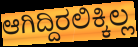
ಆಗಿದ್ದಿರಲಿಕ್ಕಿಲ್ಲ